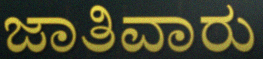
ಜಾತಿವಾರು